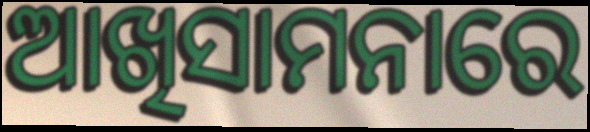
ଆଖିସାମନାରେ